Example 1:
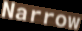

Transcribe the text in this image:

Narrow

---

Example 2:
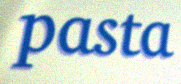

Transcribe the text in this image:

pasta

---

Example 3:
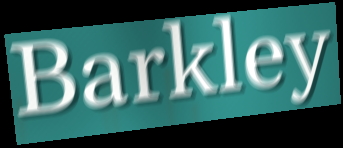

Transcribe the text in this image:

Barkley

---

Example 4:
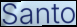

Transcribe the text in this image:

Santo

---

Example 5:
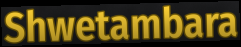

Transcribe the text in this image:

Shwetambara